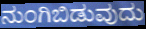
ನುಂಗಿಬಿಡುವುದು